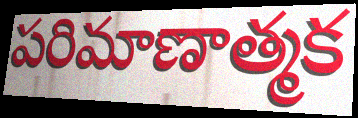
పరిమాణాత్మక